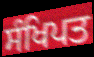
ਸੰਖਿਪਤ